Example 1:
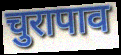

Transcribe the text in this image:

चुरापाव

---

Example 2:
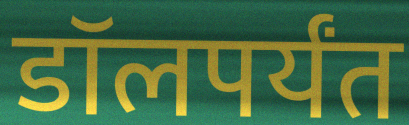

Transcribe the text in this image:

डॉलपर्यंत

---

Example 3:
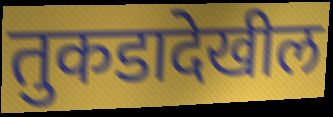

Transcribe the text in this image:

तुकडादेखील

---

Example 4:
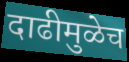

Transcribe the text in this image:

दाढीमुळेच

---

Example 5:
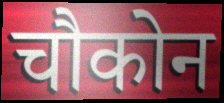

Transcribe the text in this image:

चौकोन